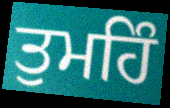
ਤੁਮਹਿੰ